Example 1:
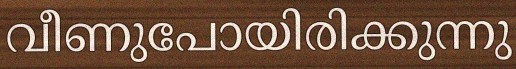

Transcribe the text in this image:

വീണുപോയിരിക്കുന്നു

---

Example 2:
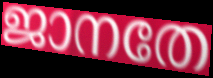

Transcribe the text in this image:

ജാനതേ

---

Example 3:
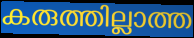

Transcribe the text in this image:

കരുത്തില്ലാത്ത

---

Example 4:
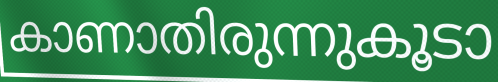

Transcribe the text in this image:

കാണാതിരുന്നുകൂടാ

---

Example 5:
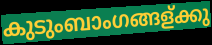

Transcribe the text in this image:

കുടുംബാംഗങ്ങള്ക്കു